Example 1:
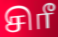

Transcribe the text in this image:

சிரீ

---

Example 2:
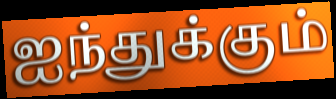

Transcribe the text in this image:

ஐந்துக்கும்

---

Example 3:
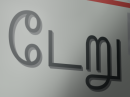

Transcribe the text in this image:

டேறு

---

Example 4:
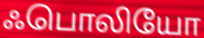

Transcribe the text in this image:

ஃபொலியோ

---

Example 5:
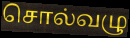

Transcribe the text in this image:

சொல்வழு